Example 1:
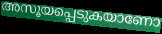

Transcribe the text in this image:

അസൂയപ്പെടുകയാണോ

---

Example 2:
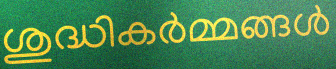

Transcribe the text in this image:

ശുദ്ധികർമ്മങ്ങൾ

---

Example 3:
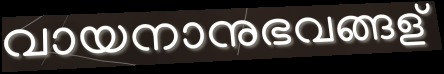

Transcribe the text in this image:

വായനാനുഭവങ്ങള്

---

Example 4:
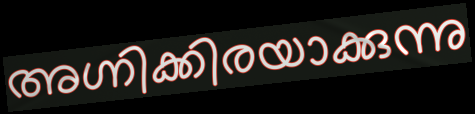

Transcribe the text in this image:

അഗ്നിക്കിരയാക്കുന്നു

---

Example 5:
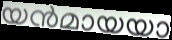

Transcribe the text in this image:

യൻമായയാ